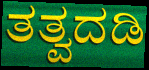
ತತ್ವದಡಿ